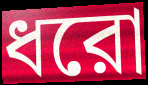
ধরো